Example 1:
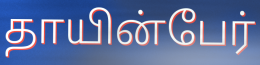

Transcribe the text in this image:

தாயின்பேர்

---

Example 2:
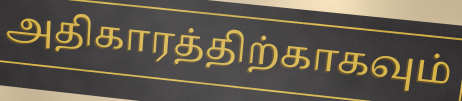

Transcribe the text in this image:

அதிகாரத்திற்காகவும்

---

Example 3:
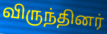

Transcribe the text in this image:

விருந்தினர்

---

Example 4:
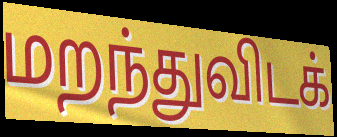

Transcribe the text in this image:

மறந்துவிடக்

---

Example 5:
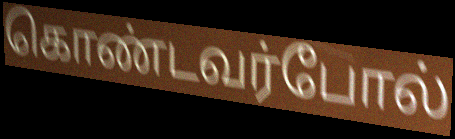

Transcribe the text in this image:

கொண்டவர்போல்